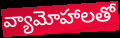
వ్యామోహాలతో